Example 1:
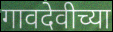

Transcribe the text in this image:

गावदेवीच्या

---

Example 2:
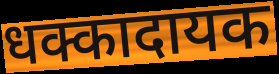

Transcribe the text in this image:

धक्कादायक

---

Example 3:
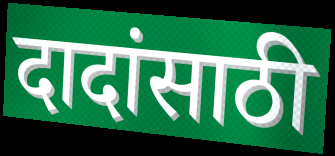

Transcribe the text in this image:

दादांसाठी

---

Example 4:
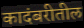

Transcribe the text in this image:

कादंबरीतील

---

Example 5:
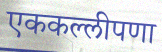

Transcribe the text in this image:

एककल्लीपणा